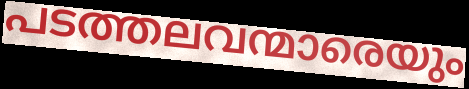
പടത്തലവന്മാരെയും